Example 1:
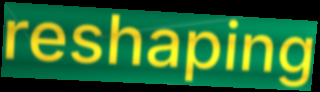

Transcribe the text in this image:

reshaping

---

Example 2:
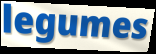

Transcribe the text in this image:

legumes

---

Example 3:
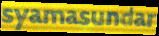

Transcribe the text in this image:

syamasundar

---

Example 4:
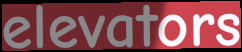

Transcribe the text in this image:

elevators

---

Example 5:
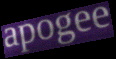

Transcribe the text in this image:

apogee